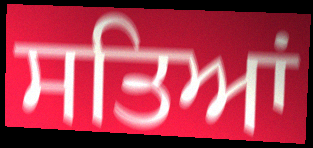
ਸਤਿਆਂ